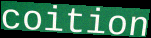
coition